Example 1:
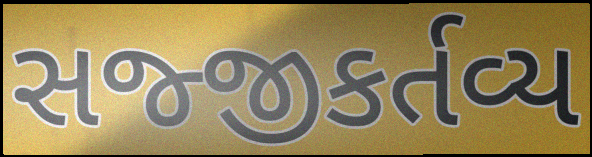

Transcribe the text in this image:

સજ્જીકર્તવ્ય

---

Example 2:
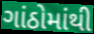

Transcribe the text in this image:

ગાંઠોમાંથી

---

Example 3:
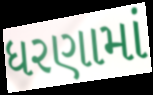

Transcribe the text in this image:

ધરણામાં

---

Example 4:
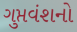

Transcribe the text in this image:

ગુપ્તવંશનો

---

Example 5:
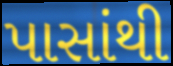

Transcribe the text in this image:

પાસાંથી